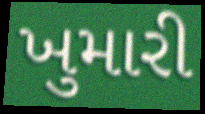
ખુમારી